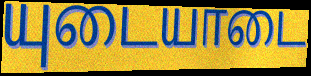
யுடையாடை